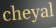
cheyal